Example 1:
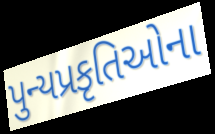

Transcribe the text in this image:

પુન્યપ્રકૃતિઓના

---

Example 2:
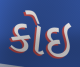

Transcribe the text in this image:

કોઇ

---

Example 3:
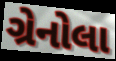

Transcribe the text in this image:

ગ્રેનોલા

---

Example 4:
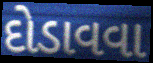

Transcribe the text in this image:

દોડાવવા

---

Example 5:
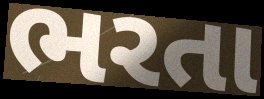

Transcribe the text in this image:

ભરતા